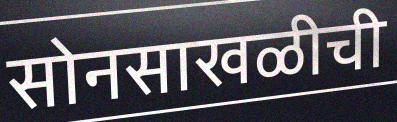
सोनसाखळीची